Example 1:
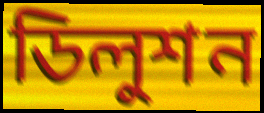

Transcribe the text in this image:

ডিলুশন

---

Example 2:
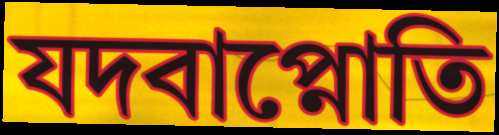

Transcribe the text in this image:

যদবাপ্নোতি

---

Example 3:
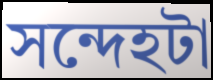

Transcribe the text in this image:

সন্দেহটা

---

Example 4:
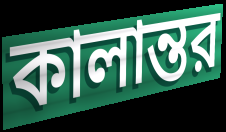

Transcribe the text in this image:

কালান্তর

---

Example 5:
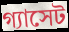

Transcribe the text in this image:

গ্যাসেট